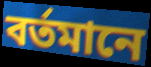
বর্তমানে